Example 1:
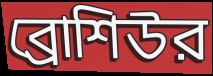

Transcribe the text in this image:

ব্রোশিউর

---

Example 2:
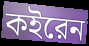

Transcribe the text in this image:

কইরেন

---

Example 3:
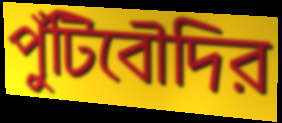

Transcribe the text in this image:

পুঁটিবৌদির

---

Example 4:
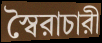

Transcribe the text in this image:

স্বৈরাচারী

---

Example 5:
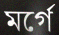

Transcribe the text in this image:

মর্গে